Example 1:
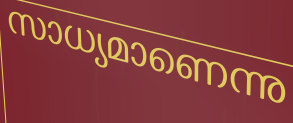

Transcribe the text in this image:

സാധ്യമാണെന്നു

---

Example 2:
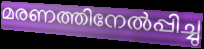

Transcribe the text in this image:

മരണത്തിനേൽപ്പിച്ചു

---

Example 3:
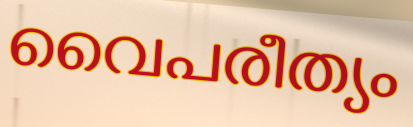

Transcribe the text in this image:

വൈപരീത്യം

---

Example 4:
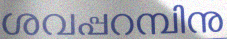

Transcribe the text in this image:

ശവപ്പറമ്പിനു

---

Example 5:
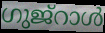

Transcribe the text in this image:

ഗുജ്റാൾ